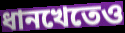
ধানখেতেও